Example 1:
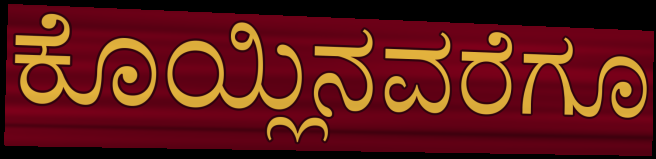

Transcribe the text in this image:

ಕೊಯ್ಲಿನವರೆಗೂ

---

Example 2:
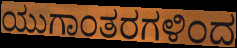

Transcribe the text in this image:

ಯುಗಾಂತರಗಳಿಂದ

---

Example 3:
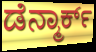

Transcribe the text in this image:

ಡೆನ್ಮಾರ್ಕ್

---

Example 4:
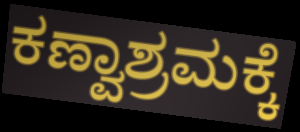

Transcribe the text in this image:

ಕಣ್ವಾಶ್ರಮಕ್ಕೆ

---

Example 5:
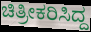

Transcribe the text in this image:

ಚಿತ್ರೀಕರಿಸಿದ್ದ